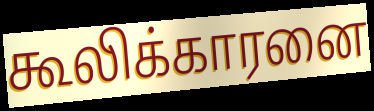
கூலிக்காரனை